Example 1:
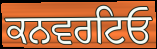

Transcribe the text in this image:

ਕਨਵਰਟਿਓ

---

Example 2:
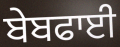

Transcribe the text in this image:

ਬੇਬਫਾਈ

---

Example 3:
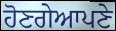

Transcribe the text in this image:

ਹੋਣਗੇਆਪਣੇ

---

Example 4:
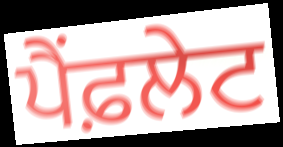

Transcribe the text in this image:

ਪੈਂਫ਼ਲੇਟ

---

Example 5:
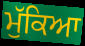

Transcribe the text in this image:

ਮੁੱਕਿਆ